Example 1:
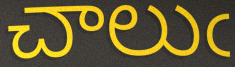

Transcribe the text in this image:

చాలుఁ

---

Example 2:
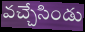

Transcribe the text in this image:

వచ్చేసిండు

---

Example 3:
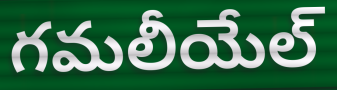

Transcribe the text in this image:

గమలీయేల్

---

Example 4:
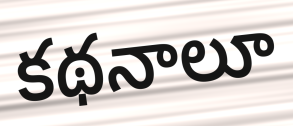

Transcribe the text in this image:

కథనాలూ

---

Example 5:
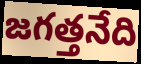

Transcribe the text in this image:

జగత్తనేది